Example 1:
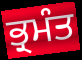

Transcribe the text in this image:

ਭ੍ਰਮੰਤ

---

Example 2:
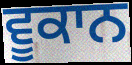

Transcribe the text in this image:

ਵੂਕਾਨ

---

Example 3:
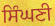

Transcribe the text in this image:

ਸਿੰਘਣੀ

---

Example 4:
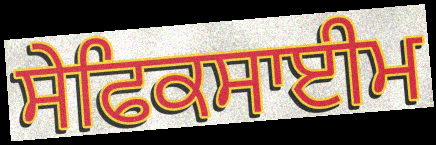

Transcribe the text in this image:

ਸੇਫਿਕਸਾਈਮ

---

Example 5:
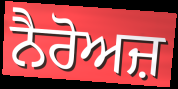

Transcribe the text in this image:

ਨੈਰੋਅਜ਼